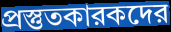
প্রস্তুতকারকদের